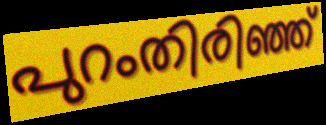
പുറംതിരിഞ്ഞ്